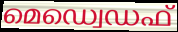
മെഡ്വെഡഫ്